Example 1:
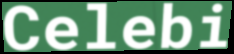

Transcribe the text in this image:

Celebi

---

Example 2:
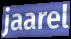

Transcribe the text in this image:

jaarel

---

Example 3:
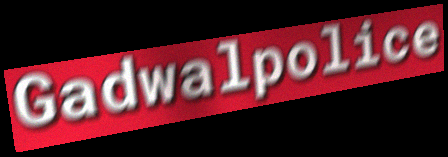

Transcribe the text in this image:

Gadwalpolice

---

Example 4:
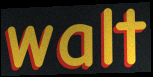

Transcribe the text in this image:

walt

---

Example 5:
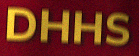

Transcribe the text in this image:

DHHS